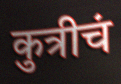
कुत्रीचं